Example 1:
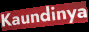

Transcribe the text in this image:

Kaundinya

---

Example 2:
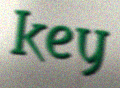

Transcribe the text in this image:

key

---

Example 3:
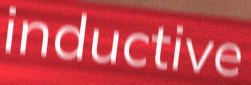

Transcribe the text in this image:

inductive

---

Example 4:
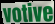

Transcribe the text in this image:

votive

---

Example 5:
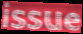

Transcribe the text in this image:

issue